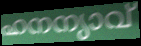
ഹനന്യാവ്